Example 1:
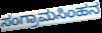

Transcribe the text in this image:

ಸಂಗ್ರಾಮಸಿಂಹನ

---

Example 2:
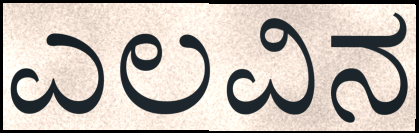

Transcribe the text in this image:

ಎಲವಿನ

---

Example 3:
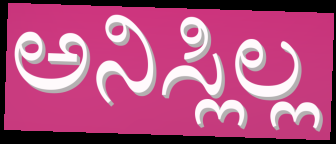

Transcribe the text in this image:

ಅನಿಸ್ಲಿಲ್ಲ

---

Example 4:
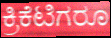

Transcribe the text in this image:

ಕ್ರಿಕೆಟಿಗರೂ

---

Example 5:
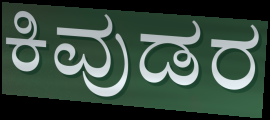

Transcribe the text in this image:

ಕಿವುಡರ